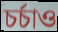
চর্চাও